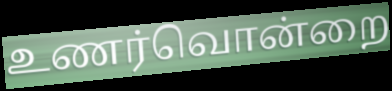
உணர்வொன்றை